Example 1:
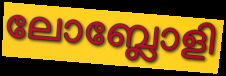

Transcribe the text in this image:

ലോബ്ലോളി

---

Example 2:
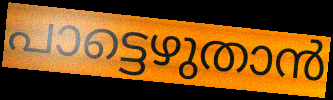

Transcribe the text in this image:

പാട്ടെഴുതാൻ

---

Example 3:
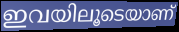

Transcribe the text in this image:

ഇവയിലൂടെയാണ്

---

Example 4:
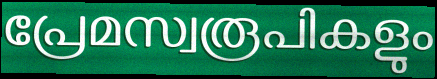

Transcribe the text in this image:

പ്രേമസ്വരൂപികളും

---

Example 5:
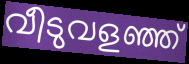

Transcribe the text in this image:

വീടുവളഞ്ഞ്